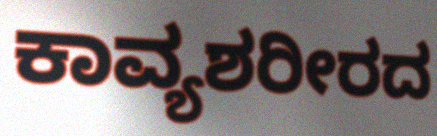
ಕಾವ್ಯಶರೀರದ